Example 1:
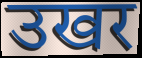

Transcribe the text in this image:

उखर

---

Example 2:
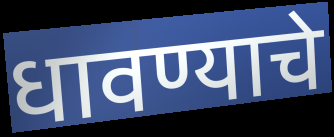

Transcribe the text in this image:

धावण्याचे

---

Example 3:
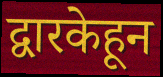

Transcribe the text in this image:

द्वारकेहून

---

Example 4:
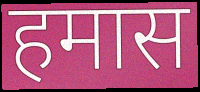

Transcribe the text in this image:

हमास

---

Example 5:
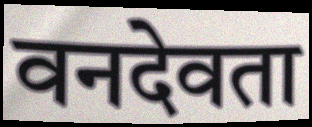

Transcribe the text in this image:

वनदेवता